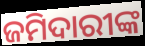
ଜମିଦାରୀଙ୍କ